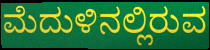
ಮೆದುಳಿನಲ್ಲಿರುವ